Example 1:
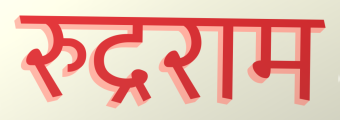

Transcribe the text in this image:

रुद्रराम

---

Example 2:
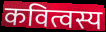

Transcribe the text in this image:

कवित्वस्य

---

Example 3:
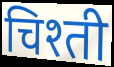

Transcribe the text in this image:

चिश्ती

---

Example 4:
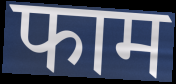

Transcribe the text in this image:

फाम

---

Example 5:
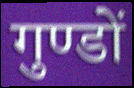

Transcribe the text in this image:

गुण्डों